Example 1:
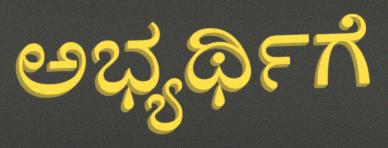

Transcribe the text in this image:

ಅಭ್ಯರ್ಥಿಗೆ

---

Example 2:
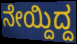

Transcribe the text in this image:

ನೇಯ್ದಿದ್ದ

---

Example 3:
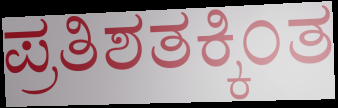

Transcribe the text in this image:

ಪ್ರತಿಶತಕ್ಕಿಂತ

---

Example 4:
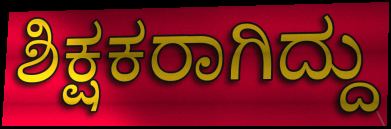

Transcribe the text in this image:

ಶಿಕ್ಷಕರಾಗಿದ್ದು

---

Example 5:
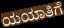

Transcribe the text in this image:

ಯಯಾತಿಗೆ